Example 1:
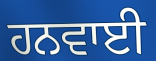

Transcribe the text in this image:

ਹਨਵਾਈ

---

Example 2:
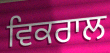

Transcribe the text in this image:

ਵਿਕਰਾਲ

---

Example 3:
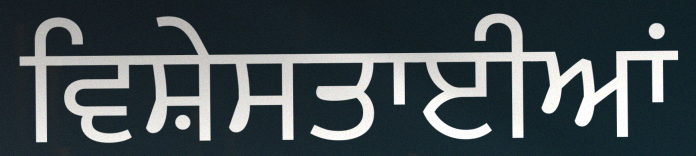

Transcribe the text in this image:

ਵਿਸ਼ੇਸਤਾਈਆਂ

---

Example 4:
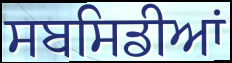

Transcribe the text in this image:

ਸਬਸਿਡੀਆਂ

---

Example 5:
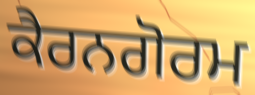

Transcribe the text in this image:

ਕੈਰਨਗੋਰਮ